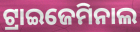
ଟ୍ରାଇଜେମିନାଲ